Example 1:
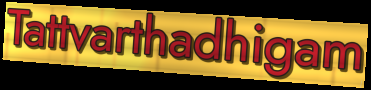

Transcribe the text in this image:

Tattvarthadhigam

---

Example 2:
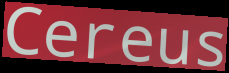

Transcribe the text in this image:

Cereus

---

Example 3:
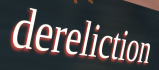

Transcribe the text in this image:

dereliction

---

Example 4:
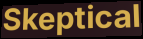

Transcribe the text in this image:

Skeptical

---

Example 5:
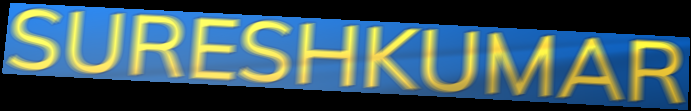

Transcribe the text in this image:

SURESHKUMAR